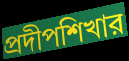
প্রদীপশিখার